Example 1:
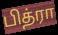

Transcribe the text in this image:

பித்ரா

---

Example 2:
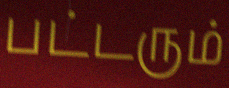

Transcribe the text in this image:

பட்டரும்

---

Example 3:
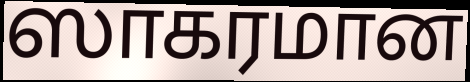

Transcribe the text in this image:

ஸாகரமான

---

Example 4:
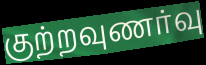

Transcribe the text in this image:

குற்றவுணர்வு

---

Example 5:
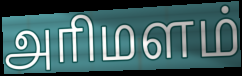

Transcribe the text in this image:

அரிமளம்